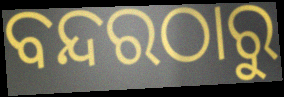
ବନ୍ଦରଠାରୁ